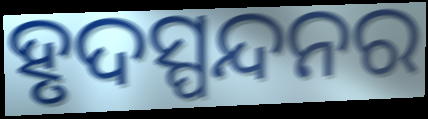
ହୃଦସ୍ପନ୍ଦନର